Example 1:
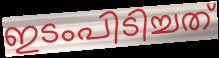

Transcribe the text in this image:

ഇടംപിടിച്ചത്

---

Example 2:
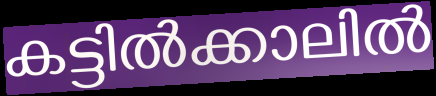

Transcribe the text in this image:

കട്ടിൽക്കാലിൽ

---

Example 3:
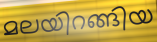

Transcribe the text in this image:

മലയിറങ്ങിയ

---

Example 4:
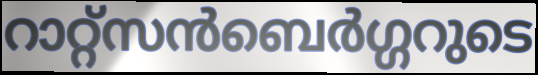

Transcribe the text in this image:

റാറ്റ്സൻബെർഗ്ഗറുടെ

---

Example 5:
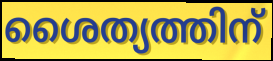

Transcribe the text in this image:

ശൈത്യത്തിന്